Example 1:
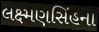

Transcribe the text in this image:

લક્ષ્મણસિંહના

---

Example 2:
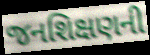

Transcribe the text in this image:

જનશિક્ષણની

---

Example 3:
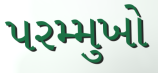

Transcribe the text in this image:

પરમ્મુખો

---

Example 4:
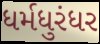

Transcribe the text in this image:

ધર્મધુરંધર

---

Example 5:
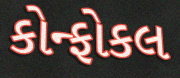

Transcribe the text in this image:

કોન્ફોકલ